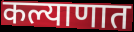
कल्याणात